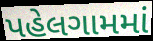
પહેલગામમાં